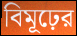
বিমূঢ়ের